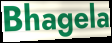
Bhagela